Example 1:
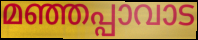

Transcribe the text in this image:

മഞ്ഞപ്പാവാട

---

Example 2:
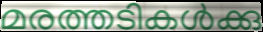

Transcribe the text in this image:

മരത്തടികൾക്കു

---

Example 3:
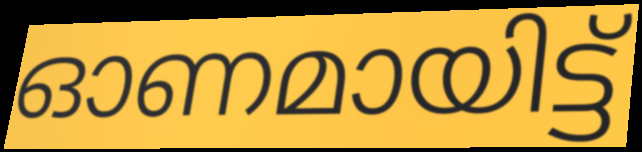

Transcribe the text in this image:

ഓണമായിട്ട്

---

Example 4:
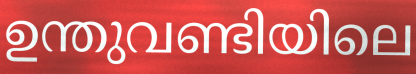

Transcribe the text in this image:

ഉന്തുവണ്ടിയിലെ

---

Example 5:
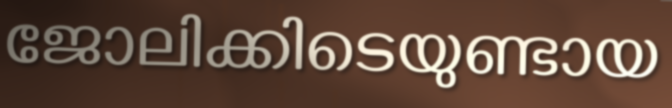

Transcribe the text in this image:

ജോലിക്കിടെയുണ്ടായ